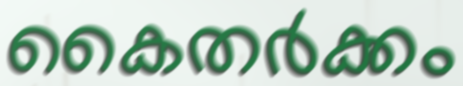
കൈതർക്കം